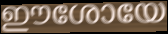
ഈശോയേ